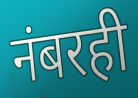
नंबरही